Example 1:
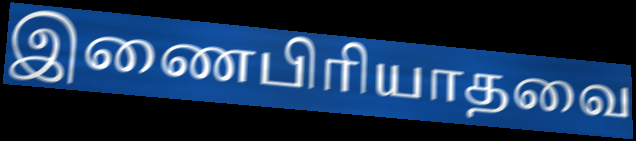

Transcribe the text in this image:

இணைபிரியாதவை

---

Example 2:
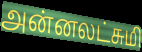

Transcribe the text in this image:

அன்னலட்சுமி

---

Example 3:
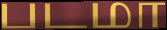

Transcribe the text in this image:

படமா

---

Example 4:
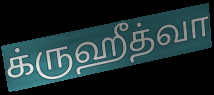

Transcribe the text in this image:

க்ருஹீத்வா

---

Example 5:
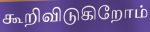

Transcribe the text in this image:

கூறிவிடுகிறோம்